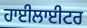
ਹਾਈਲਾਈਟਰ